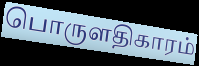
பொருளதிகாரம்